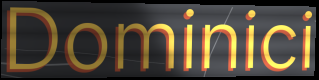
Dominici